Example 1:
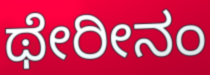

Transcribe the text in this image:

ಥೇರೀನಂ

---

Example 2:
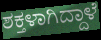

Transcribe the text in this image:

ಶಕ್ತಳಾಗಿದ್ದಾಳೆ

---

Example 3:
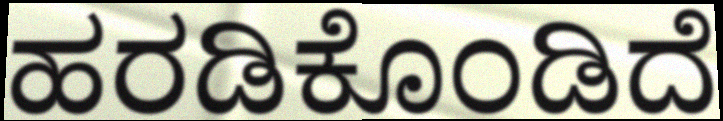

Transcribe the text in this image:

ಹರಡಿಕೊಂಡಿದೆ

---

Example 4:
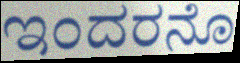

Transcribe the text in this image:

ಇಂದರನೊ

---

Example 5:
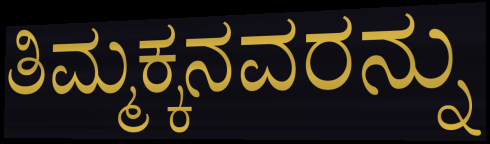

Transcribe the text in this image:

ತಿಮ್ಮಕ್ಕನವರನ್ನು